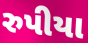
રુપીયા